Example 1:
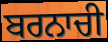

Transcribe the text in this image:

ਬਰਨਾਚੀ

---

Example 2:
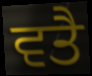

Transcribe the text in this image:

ਵਤੈ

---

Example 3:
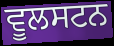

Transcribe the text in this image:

ਵੂਲਸਟਨ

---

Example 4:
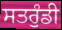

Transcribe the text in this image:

ਸਤਰੁੰਡੀ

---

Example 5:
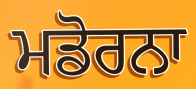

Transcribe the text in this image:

ਮਡੋਰਨਾ